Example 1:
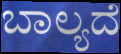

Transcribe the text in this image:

ಬಾಲ್ಯದೆ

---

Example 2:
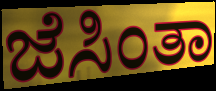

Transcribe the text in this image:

ಜೆಸಿಂತಾ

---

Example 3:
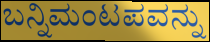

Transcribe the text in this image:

ಬನ್ನಿಮಂಟಪವನ್ನು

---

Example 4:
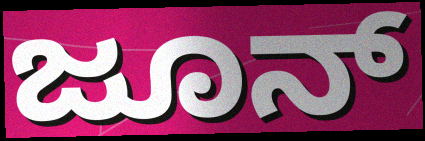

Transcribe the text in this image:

ಜೂನ್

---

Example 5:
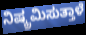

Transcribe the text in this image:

ನಿಷ್ಕ್ರಮಿಸುತ್ತಾಳೆ